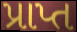
પ્રાપ્‍ત